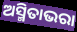
ଅସ୍ମିତାଭରା